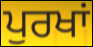
ਪੁਰਖਾਂ